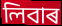
লিবাৰ